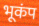
भूकंप